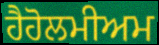
ਹੈਹੋਲਮੀਅਮ